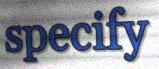
specify